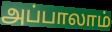
அப்பாலாம்